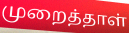
முறைத்தாள்